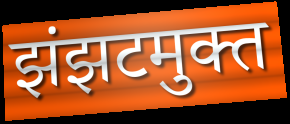
झंझटमुक्त